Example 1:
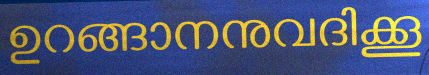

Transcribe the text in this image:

ഉറങ്ങാനനുവദിക്കൂ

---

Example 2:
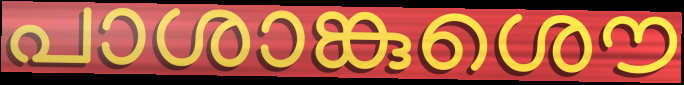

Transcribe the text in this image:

പാശാങ്കുശൌ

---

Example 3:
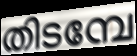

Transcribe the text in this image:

തിടമ്പേ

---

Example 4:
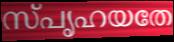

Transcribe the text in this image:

സ്പൃഹയതേ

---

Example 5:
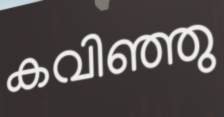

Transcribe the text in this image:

കവിഞ്ഞു